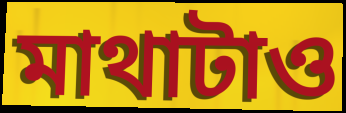
মাথাটাও